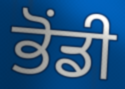
ਭੋਂਡੀ